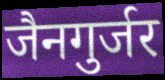
जैनगुर्जर